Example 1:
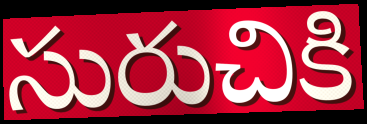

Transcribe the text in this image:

సురుచికి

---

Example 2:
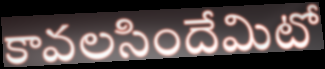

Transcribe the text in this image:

కావలసిందేమిటో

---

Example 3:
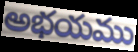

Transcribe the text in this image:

అభయము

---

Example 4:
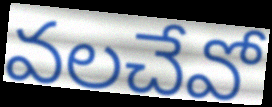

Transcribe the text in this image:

వలచేవో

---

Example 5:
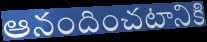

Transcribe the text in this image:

ఆనందించటానికి